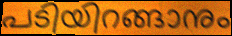
പടിയിറങ്ങാനും